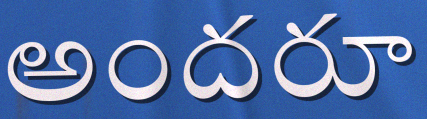
అందరూ